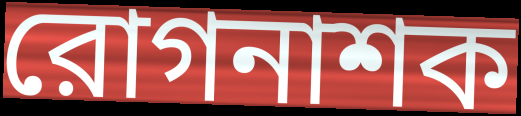
রোগনাশক